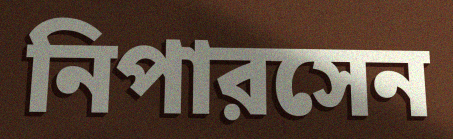
নিপারসেন